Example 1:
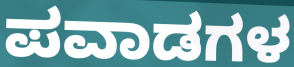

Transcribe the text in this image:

ಪವಾಡಗಳ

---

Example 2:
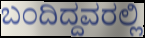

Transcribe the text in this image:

ಬಂದಿದ್ದವರಲ್ಲಿ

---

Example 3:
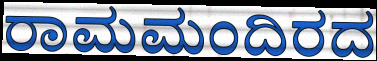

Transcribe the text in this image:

ರಾಮಮಂದಿರದ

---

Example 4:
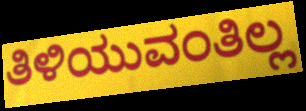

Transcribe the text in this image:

ತಿಳಿಯುವಂತಿಲ್ಲ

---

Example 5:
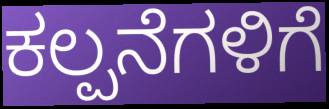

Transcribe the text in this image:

ಕಲ್ಪನೆಗಳಿಗೆ